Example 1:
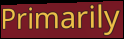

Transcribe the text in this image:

Primarily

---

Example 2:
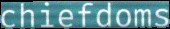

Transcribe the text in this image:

chiefdoms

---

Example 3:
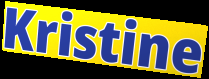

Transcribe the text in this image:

Kristine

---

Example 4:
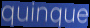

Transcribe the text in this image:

quinque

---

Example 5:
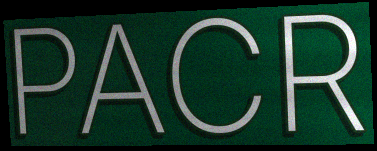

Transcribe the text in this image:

PACR